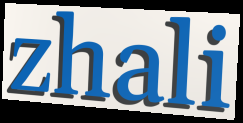
zhali